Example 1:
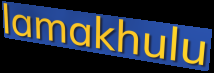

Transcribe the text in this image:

lamakhulu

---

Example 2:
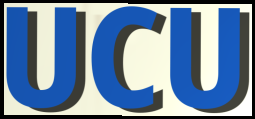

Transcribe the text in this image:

UCU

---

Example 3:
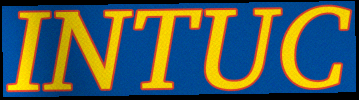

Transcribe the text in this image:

INTUC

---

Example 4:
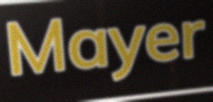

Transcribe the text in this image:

Mayer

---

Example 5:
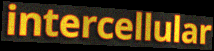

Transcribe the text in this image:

intercellular